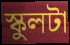
স্কুলটা